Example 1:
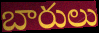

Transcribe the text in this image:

బారులు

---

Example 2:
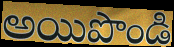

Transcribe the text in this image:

అయిపొండి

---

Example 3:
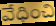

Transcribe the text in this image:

వేధించి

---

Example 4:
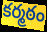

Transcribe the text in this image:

కర్మఠం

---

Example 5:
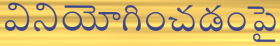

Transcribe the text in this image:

వినియోగించడంపై